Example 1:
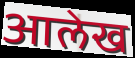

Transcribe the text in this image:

आलेख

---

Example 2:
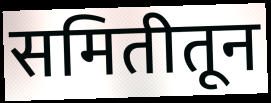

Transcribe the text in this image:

समितीतून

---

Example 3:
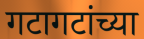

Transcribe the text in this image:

गटागटांच्या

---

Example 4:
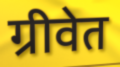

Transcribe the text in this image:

ग्रीवेत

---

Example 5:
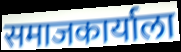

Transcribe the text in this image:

समाजकार्याला